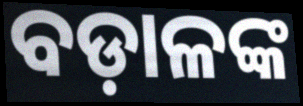
ବଡ଼ାଳଙ୍କ